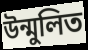
উন্মুলিত